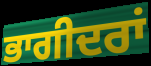
ਭਾਗੀਦਰਾਂ